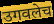
उगवलेच